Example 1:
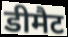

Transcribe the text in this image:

डीमैट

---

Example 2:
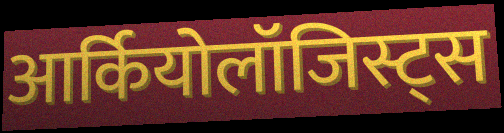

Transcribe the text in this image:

आर्कियोलॉजिस्ट्स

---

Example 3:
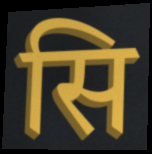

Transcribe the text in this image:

सि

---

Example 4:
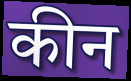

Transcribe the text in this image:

कीन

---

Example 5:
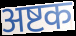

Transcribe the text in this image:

अष्टक